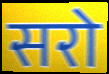
सरो